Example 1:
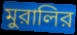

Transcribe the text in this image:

মুরালির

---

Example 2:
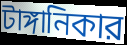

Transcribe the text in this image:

টাঙ্গানিকার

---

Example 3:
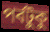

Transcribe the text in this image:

পর্বটুকু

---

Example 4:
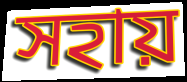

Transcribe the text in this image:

সহায়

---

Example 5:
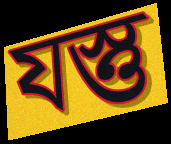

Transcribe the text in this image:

যস্তু